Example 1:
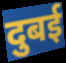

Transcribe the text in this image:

दुबई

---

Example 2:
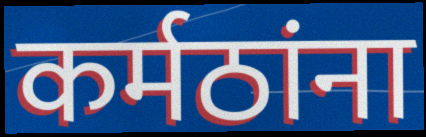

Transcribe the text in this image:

कर्मठांना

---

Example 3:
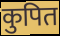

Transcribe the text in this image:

कुपित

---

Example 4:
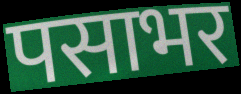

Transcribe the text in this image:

पसाभर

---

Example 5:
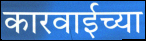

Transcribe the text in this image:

कारवाईच्या